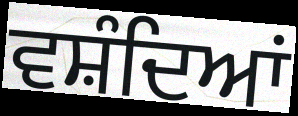
ਵਸ਼ੰਦਿਆਂ